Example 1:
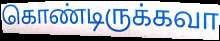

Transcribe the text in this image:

கொண்டிருக்கவா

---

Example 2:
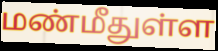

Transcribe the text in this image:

மண்மீதுள்ள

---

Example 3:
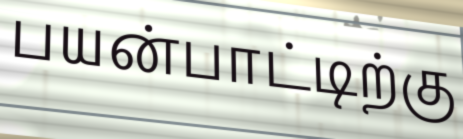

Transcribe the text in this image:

பயன்பாட்டிற்கு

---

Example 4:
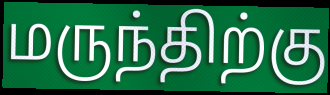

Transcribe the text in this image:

மருந்திற்கு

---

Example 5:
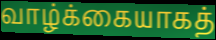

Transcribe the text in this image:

வாழ்க்கையாகத்